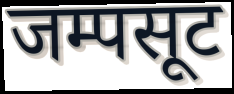
जम्पसूट